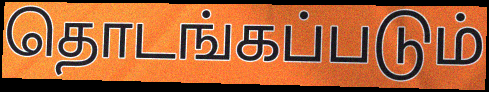
தொடங்கப்படும்